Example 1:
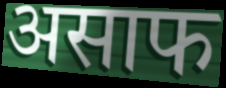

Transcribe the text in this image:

असाफ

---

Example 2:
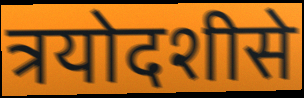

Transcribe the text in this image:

त्रयोदशीसे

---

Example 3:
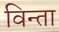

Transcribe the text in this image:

विन्ता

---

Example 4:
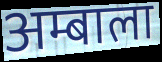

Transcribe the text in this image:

अम्बाला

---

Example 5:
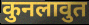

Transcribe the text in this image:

कुनलावुत